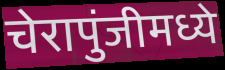
चेरापुंजीमध्ये